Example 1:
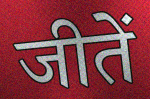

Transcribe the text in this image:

जीतें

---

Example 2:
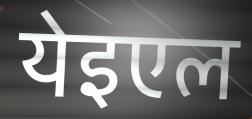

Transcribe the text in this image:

येइएल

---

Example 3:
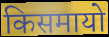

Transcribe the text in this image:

किसमायो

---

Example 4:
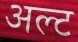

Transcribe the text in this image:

अल्ट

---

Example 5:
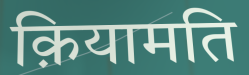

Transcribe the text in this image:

क़ियामति